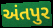
અંતપુર